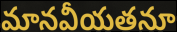
మానవీయతనూ